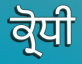
ਕ੍ਰੋਧੀ